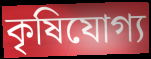
কৃষিযোগ্য